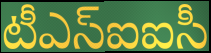
టీఎస్ఐఐసీ